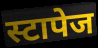
स्टापेज